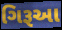
ગિરૂઆ